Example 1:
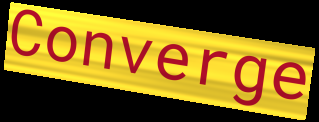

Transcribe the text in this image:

Converge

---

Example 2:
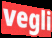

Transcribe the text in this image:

vegli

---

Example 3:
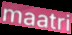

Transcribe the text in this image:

maatri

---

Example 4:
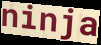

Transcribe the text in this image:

ninja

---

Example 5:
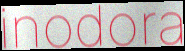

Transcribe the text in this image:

inodora